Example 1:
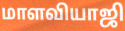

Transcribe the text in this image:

மாளவியாஜி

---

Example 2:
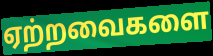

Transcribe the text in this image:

ஏற்றவைகளை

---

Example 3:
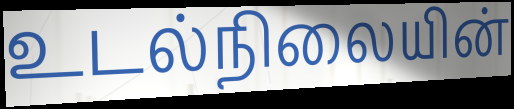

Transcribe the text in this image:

உடல்நிலையின்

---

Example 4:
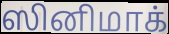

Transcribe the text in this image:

ஸினிமாக்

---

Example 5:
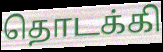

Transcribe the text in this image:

தொடக்கி